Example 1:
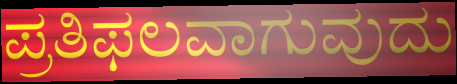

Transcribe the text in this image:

ಪ್ರತಿಫಲವಾಗುವುದು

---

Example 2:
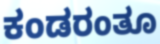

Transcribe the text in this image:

ಕಂಡರಂತೂ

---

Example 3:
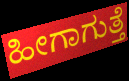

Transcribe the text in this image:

ಹೀಗಾಗುತ್ತೆ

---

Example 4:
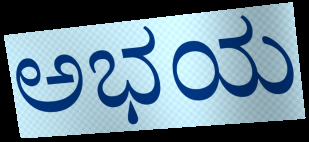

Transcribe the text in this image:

ಅಭಯ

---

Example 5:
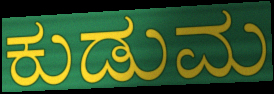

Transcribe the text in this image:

ಕುಡುಮ